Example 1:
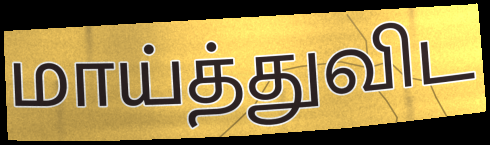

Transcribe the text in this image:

மாய்த்துவிட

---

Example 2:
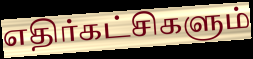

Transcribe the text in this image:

எதிர்கட்சிகளும்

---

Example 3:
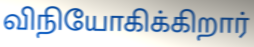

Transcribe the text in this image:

விநியோகிக்கிறார்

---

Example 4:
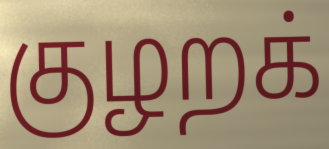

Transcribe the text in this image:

குழறக்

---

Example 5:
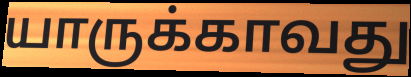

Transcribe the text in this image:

யாருக்காவது